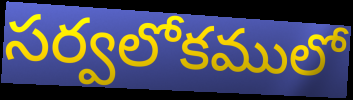
సర్వలోకములో